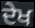
ਦੇਖ